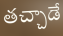
తచ్చాడే